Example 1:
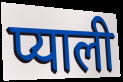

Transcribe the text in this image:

प्याली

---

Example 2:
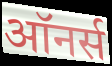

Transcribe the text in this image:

ऑनर्स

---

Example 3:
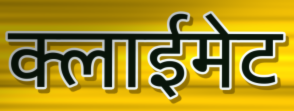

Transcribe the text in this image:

क्लाईमेट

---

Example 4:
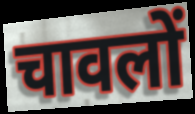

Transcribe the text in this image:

चावलों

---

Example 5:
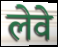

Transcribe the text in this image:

लेवे